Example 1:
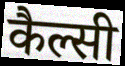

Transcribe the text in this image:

कैल्सी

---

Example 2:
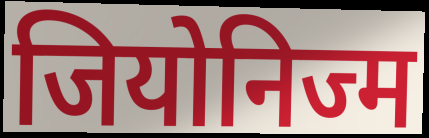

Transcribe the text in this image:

जियोनिज्म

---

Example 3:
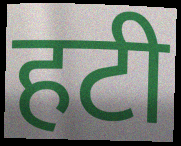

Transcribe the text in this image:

हटी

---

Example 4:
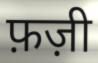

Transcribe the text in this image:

फ़ज़ी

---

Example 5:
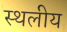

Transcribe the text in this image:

स्थलीय